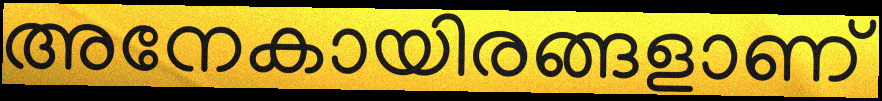
അനേകായിരങ്ങളാണ്